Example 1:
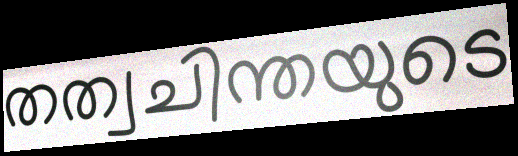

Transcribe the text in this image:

തത്വചിന്തയുടെ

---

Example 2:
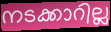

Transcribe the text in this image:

നടക്കാറില്ല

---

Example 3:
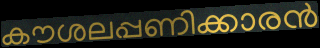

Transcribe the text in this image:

കൗശലപ്പണിക്കാരൻ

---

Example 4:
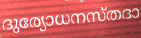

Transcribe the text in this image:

ദുര്യോധനസ്തദാ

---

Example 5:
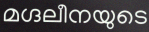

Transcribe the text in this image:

മഗ്ദലീനയുടെ